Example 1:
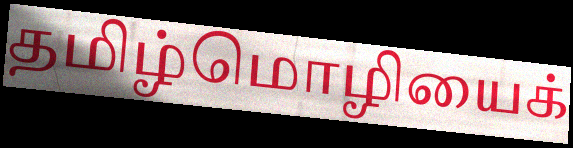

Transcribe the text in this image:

தமிழ்மொழியைக்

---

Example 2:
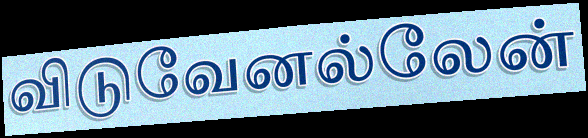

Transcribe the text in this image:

விடுவேனல்லேன்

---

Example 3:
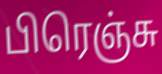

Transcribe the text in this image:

பிரெஞ்சு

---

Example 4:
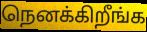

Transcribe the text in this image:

நெனக்கிறீங்க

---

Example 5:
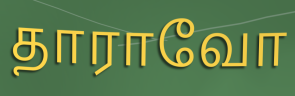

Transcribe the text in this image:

தாராவோ